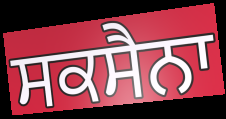
ਸਕਸੈਨਾ